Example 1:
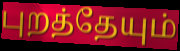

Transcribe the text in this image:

புறத்தேயும்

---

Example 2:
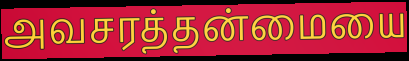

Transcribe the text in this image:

அவசரத்தன்மையை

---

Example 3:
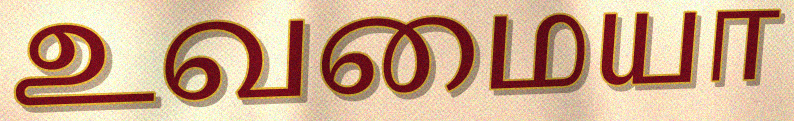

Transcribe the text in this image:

உவமையா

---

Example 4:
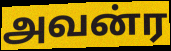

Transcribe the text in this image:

அவன்ர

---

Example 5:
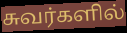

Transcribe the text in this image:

சுவர்களில்